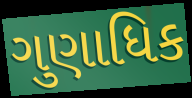
ગુણાધિક